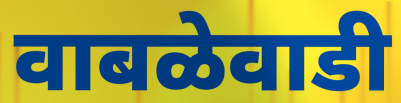
वाबळेवाडी